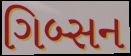
ગિબ્સન